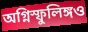
অগ্নিস্ফুলিঙ্গও